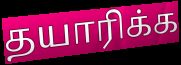
தயாரிக்க